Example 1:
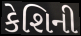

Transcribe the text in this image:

કેશિની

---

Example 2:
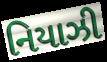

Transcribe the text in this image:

નિયાઝી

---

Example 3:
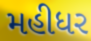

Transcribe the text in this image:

મહીધર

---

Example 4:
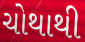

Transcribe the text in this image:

ચોથાથી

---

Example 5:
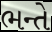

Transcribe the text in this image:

ભન્તે